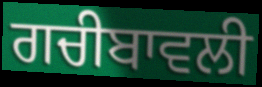
ਗਚੀਬਾਵਲੀ